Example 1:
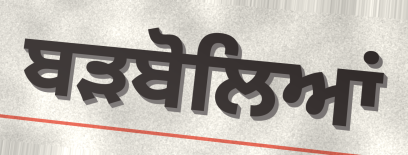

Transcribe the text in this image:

ਬੜਬੋਲਿਆਂ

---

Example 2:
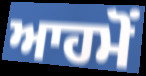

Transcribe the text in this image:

ਆਹਮੋਂ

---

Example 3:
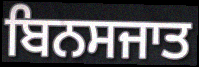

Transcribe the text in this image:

ਬਿਨਸਜਾਤ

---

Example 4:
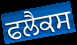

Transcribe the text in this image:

ਫਲੈਕਸ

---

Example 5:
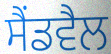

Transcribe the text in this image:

ਸੈਂਡਵੈਲ